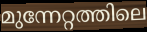
മുന്നേറ്റത്തിലെ